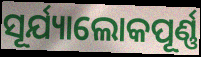
ସୂର୍ଯ୍ୟାଲୋକପୂର୍ଣ୍ଣ